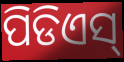
ପିଡିଏସ୍